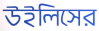
উইলিসের